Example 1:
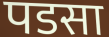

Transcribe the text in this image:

पडसा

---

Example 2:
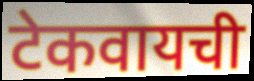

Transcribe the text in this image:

टेकवायची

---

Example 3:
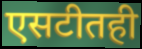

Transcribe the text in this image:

एसटीतही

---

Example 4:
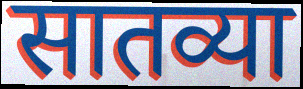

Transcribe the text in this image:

सातव्या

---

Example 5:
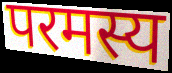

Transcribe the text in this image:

परमस्य